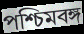
পশ্চিমবঙ্গ